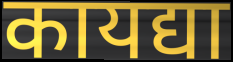
कायद्या